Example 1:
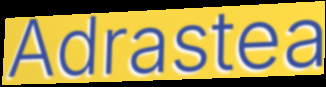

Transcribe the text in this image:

Adrastea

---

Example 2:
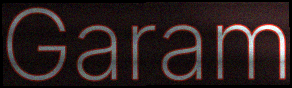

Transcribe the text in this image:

Garam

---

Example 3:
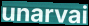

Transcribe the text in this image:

unarvai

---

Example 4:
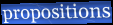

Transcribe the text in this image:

propositions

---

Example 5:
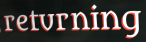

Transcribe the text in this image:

returning